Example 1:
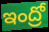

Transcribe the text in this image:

ఇంద్రో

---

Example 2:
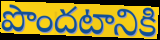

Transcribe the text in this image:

పొందటానికి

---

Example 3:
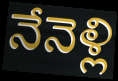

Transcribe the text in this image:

నేనెళ్లి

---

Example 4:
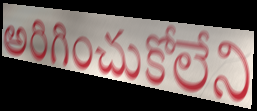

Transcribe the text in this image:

అరిగించుకోలేని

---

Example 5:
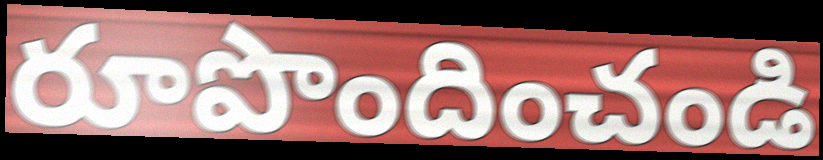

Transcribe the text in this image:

రూపొందించండి